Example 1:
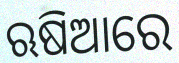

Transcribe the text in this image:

ଋଷିଆରେ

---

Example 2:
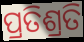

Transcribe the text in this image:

ପ୍ରତିଶ୍ରତି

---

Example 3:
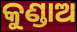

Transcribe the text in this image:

କୁଣ୍ଡାଅ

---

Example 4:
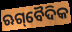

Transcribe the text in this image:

ଋଗ୍‌ବୈଦିକ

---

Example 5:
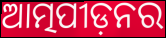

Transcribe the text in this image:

ଆତ୍ମପୀଡ଼ନର